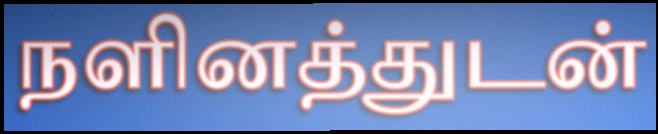
நளினத்துடன்